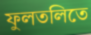
ফুলতলিতে